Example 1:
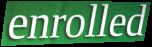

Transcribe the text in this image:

enrolled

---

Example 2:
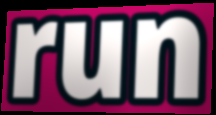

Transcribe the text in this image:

run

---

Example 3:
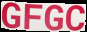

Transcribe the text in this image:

GFGC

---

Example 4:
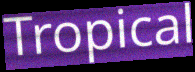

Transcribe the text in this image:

Tropical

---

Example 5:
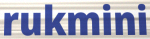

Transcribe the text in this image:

rukmini